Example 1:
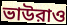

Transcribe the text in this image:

ভাউরাও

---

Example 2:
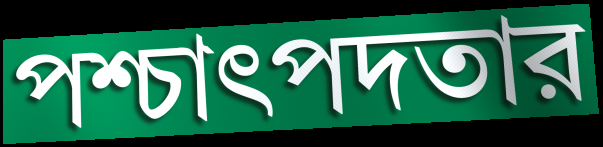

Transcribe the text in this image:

পশ্চাৎপদতার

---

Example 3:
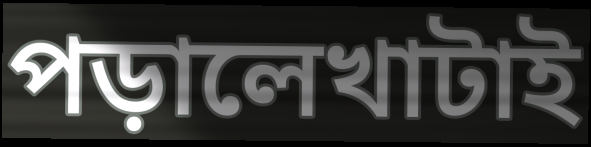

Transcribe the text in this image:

পড়ালেখাটাই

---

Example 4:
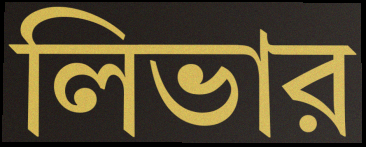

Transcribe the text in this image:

লিভার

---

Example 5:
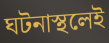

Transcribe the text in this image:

ঘটনাস্থলেই